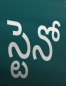
స్టెనో